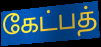
கேட்பத்